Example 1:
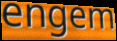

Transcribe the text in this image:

engem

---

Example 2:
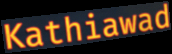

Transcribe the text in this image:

Kathiawad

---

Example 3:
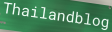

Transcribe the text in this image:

Thailandblog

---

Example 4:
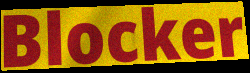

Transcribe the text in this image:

Blocker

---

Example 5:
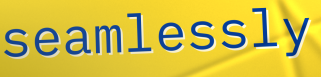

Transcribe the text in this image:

seamlessly